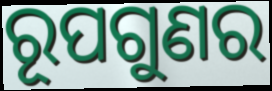
ରୂପଗୁଣର